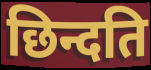
छिन्दति